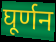
घूर्णन